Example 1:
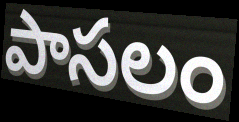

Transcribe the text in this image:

పాసలం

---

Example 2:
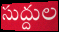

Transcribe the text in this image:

సుద్దుల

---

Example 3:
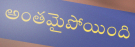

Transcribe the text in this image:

అంతమైపోయింది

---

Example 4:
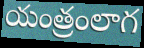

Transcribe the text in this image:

యంత్రంలాగ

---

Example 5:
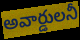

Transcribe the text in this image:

అవార్డులనీ